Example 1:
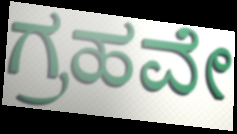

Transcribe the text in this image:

ಗ್ರಹವೇ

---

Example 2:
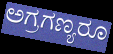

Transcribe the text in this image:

ಅಗ್ರಗಣ್ಯರೂ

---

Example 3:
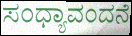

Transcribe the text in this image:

ಸಂಧ್ಯಾವಂದನೆ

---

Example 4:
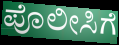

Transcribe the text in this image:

ಪೊಲೀಸಿಗೆ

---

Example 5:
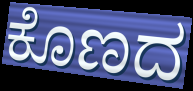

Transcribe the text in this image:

ಕೊಣದ